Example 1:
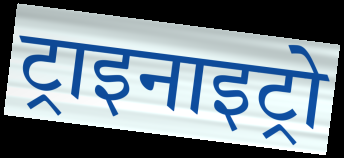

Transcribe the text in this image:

ट्राइनाइट्रो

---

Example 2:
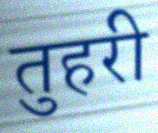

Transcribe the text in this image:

तुहरी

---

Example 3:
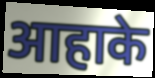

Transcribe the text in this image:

आहाके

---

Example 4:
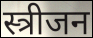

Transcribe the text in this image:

स्त्रीजन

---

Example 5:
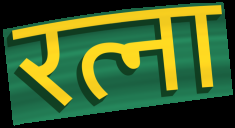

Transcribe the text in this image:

रत्ना